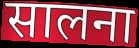
सालना